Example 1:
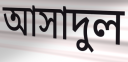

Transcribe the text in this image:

আসাদুল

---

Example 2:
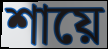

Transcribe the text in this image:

শায়ে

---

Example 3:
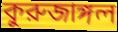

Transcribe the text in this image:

কুরুজাঙ্গল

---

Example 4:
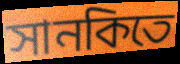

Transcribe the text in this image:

সানকিতে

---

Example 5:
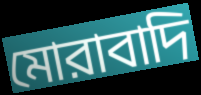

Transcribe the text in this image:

মোরাবাদি